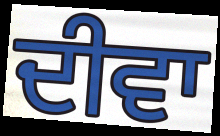
ਦੀਵਾ